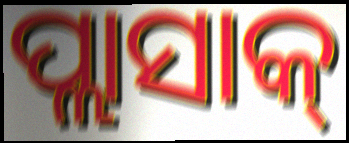
ପ୍ଲାସାକ୍